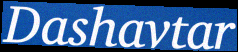
Dashavtar